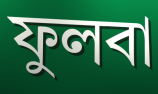
ফুলবা